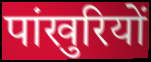
पांखुरियों